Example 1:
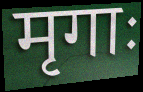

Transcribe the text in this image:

मृगाः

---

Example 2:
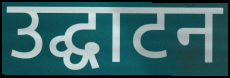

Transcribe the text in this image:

उद्घाटन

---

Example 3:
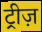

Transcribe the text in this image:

ट्रीज़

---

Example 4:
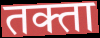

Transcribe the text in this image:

तक्ता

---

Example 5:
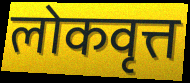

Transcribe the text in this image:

लोकवृत्त